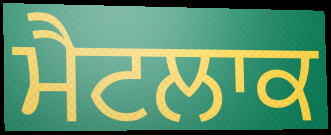
ਮੈਟਲਾਕ